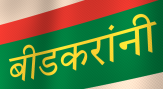
बीडकरांनी